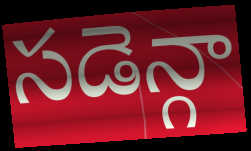
సడెన్గా